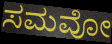
ಸಮವೋ